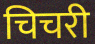
चिचरी